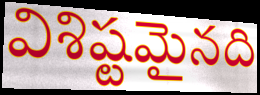
విశిష్టమైనది